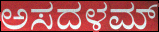
ಅಸದಳಮ್